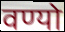
वण्यो